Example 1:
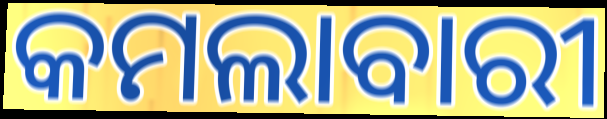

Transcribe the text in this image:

କମଲାବାରୀ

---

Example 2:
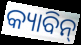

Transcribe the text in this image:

କ୍ୟାବିନ୍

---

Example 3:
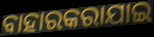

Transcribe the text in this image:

ବାହାରକରାଯାଇ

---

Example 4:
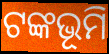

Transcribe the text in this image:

ଟଙ୍କଭୂମି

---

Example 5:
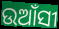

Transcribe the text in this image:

ଉଆଁସୀ